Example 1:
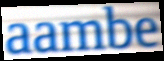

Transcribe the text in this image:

aambe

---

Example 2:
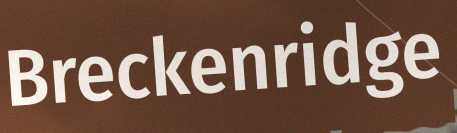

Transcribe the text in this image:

Breckenridge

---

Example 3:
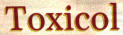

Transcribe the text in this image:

Toxicol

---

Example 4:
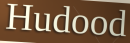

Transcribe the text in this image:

Hudood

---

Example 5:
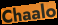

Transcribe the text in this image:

Chaalo